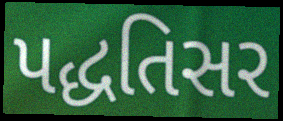
પદ્ધતિસર